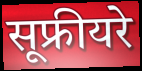
सूफ्रीयरे